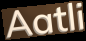
Aatli